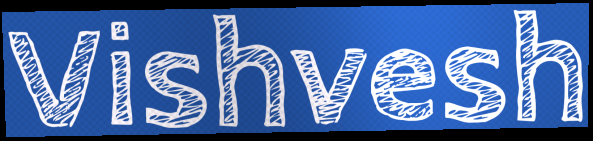
Vishvesh